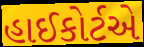
હાઈકોર્ટએ